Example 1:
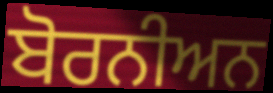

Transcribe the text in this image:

ਬੋਰਨੀਅਨ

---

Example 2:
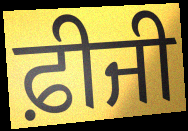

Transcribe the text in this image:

ਫ਼ੀਜੀ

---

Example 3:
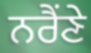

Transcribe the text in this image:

ਨਰੈਂਣੇ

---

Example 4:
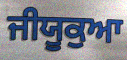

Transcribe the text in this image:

ਜੀਯੂਕੁਆ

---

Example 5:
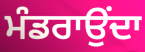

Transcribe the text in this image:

ਮੰਡਰਾਉਂਦਾ